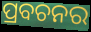
ପ୍ରବଚନର